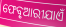
ଫେବୃଆରୀଯାଏଁ